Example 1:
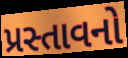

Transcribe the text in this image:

પ્રસ્તાવનો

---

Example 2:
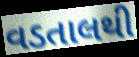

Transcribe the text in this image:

વડતાલથી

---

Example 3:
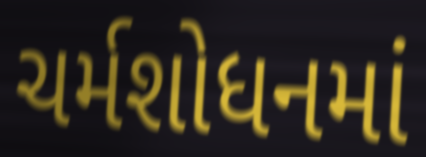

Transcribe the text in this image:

ચર્મશોધનમાં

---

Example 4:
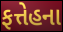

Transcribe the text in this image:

ફત્તેહના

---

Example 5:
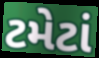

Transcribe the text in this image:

ટમેટાં